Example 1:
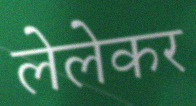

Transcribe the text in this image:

लेलेकर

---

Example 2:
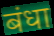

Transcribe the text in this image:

बंधा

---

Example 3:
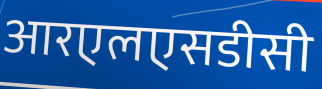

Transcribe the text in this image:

आरएलएसडीसी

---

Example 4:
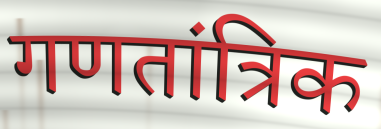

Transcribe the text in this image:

गणतांत्रिक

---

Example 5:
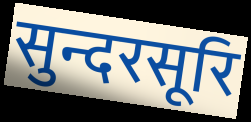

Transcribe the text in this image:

सुन्दरसूरि